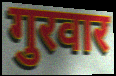
गुरवार